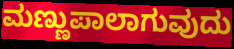
ಮಣ್ಣುಪಾಲಾಗುವುದು